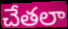
చేతలా